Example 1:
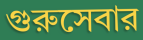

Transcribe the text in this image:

গুরুসেবার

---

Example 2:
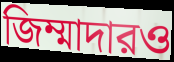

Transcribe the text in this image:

জিম্মাদারও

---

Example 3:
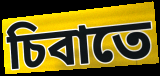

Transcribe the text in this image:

চিবাতে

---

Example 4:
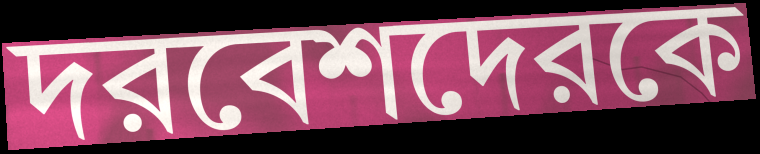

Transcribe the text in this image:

দরবেশদেরকে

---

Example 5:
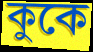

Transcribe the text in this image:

কুকে